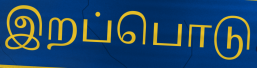
இறப்பொடு